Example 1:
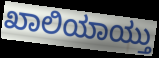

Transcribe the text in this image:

ಖಾಲಿಯಾಯ್ತು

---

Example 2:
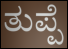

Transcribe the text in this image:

ತುಪ್ಪೆ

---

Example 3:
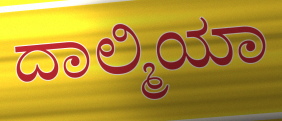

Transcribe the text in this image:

ದಾಲ್ಮಿಯಾ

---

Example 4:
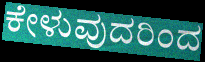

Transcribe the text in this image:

ಕೇಳುವುದರಿಂದ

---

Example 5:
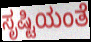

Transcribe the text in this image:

ಸೃಷ್ಟಿಯಂತೆ